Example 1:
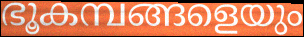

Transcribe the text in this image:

ഭൂകമ്പങ്ങളെയും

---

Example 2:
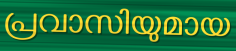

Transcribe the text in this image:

പ്രവാസിയുമായ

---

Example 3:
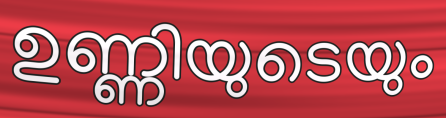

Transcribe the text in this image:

ഉണ്ണിയുടെയും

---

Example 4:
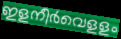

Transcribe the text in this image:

ഇളനീർവെളളം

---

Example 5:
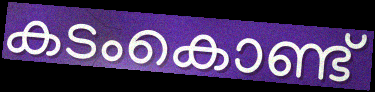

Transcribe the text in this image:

കടംകൊണ്ട്